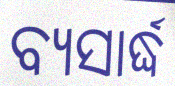
ବ୍ୟସାର୍ଦ୍ଧ